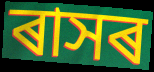
ৰাসৰ